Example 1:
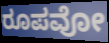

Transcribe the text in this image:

ರೂಪವೋ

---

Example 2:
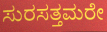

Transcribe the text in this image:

ಸುರಸತ್ತಮರೇ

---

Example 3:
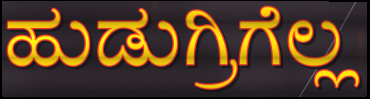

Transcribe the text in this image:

ಹುಡುಗ್ರಿಗೆಲ್ಲ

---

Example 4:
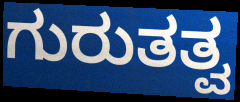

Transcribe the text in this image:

ಗುರುತತ್ವ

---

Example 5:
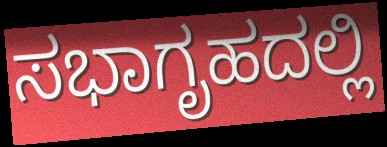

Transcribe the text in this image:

ಸಭಾಗೃಹದಲ್ಲಿ